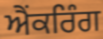
ਐਂਕਰਿੰਗ